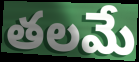
తలమే